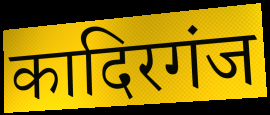
कादिरगंज